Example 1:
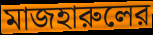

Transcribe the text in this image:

মাজহারুলের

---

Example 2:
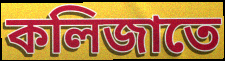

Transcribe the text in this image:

কলিজাতে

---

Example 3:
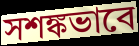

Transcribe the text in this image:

সশঙ্কভাবে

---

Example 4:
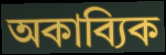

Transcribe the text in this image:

অকাব্যিক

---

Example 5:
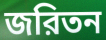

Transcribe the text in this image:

জরিতন